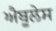
ਐਬੂਲੇਸ